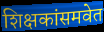
शिक्षकांसमवेत